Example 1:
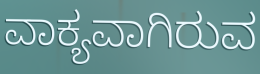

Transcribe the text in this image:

ವಾಕ್ಯವಾಗಿರುವ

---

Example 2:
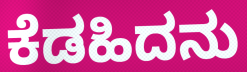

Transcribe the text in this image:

ಕೆಡಹಿದನು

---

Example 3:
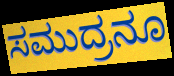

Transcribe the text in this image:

ಸಮುದ್ರನೂ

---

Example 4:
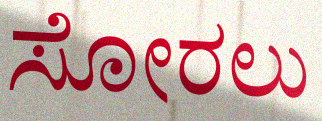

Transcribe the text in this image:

ಸೋರಲು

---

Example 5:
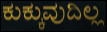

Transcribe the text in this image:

ಕುಕ್ಕುವುದಿಲ್ಲ